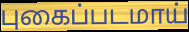
புகைப்படமாய்